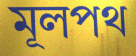
মূলপথ